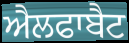
ਐਲਫਾਬੈਟ